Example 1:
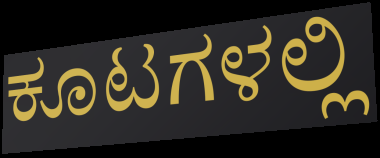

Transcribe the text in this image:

ಕೂಟಗಳಲ್ಲಿ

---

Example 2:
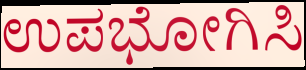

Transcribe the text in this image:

ಉಪಭೋಗಿಸಿ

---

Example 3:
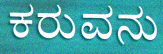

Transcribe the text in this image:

ಕರುವನು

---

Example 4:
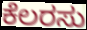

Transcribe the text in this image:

ಕೆಲರಸು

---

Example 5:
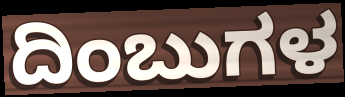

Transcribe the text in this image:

ದಿಂಬುಗಳ